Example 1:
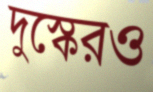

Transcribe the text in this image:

দুস্কেরও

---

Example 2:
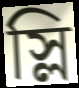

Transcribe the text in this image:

স্লি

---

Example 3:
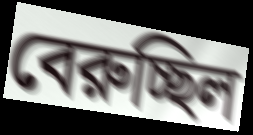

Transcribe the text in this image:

বেরুচ্ছিল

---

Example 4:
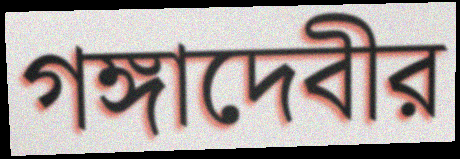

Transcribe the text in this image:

গঙ্গাদেবীর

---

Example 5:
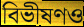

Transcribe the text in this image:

বিভীষণও